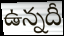
ఉన్నదీ